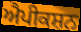
ਐਪੀਕਸ਼ਨ